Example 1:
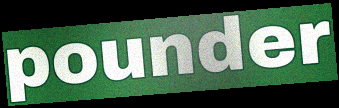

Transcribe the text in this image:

pounder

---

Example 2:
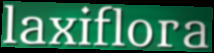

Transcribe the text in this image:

laxiflora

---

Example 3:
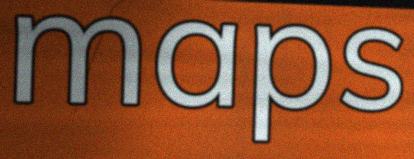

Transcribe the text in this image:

maps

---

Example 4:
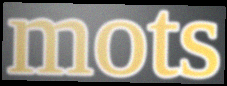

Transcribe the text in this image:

mots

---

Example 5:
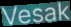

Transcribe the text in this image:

Vesak